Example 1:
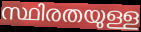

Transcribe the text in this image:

സ്ഥിരതയുള്ള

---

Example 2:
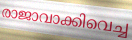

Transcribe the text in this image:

രാജാവാക്കിവെച്ച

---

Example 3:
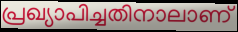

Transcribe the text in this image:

പ്രഖ്യാപിച്ചതിനാലാണ്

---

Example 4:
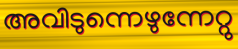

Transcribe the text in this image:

അവിടുന്നെഴുന്നേറ്റു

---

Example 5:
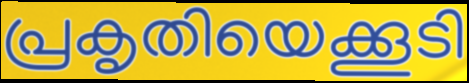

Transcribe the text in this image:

പ്രകൃതിയെക്കൂടി